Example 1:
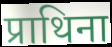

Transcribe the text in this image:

प्राथिना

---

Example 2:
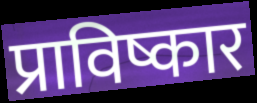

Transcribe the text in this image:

प्राविष्कार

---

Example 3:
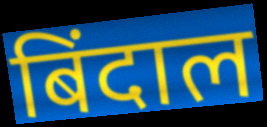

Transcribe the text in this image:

बिंदाल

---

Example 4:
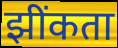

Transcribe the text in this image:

झींकता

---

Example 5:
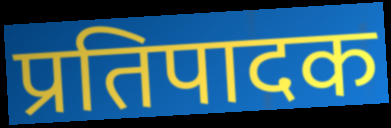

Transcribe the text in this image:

प्रतिपादक